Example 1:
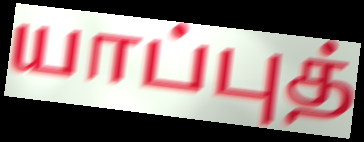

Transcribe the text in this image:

யாப்புத்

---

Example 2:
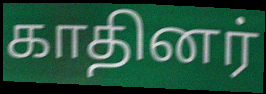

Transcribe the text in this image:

காதினர்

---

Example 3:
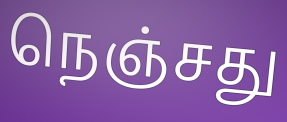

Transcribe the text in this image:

நெஞ்சது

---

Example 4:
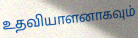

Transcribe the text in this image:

உதவியாளனாகவும்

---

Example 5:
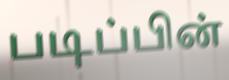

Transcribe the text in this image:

படிப்பின்